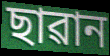
ছাৱান